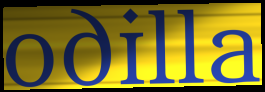
odilla